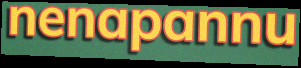
nenapannu